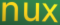
nux